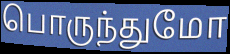
பொருந்துமோ